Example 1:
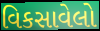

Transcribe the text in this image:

વિકસાવેલો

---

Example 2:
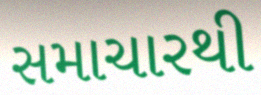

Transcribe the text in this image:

સમાચારથી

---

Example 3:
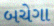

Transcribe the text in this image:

બચેગા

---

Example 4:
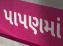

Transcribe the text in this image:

પાપણમાં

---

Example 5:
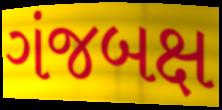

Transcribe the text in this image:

ગંજબક્ષ